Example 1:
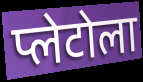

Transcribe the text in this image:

प्लेटोला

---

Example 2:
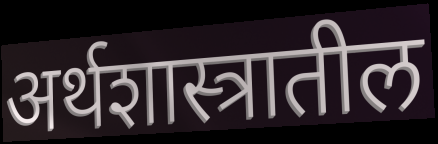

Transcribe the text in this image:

अर्थशास्त्रातील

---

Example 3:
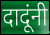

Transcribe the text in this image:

दादूंनी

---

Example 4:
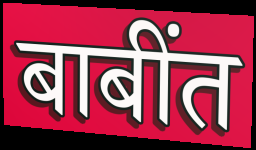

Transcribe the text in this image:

बाबींत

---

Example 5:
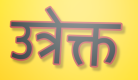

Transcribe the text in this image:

उत्रेक्त